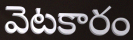
వెటకారం